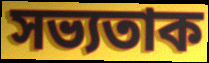
সভ্যতাক